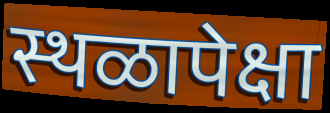
स्थळापेक्षा